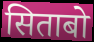
सिताबो